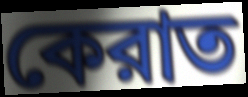
কেরাত